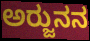
ಅರ್‍ಜುನನ